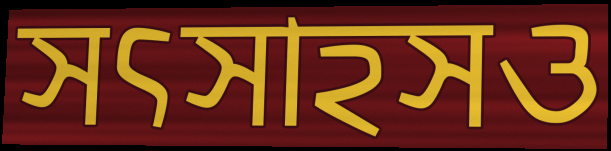
সৎসাহসও